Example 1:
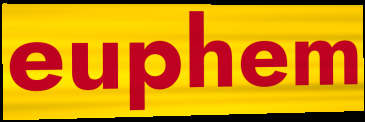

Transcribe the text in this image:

euphem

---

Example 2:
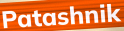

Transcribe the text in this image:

Patashnik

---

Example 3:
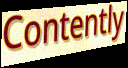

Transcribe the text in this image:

Contently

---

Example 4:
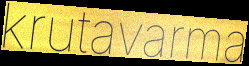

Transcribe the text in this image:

krutavarma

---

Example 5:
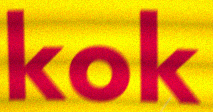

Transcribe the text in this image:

kok